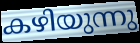
കഴിയുന്നു